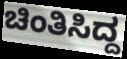
ಚಿಂತಿಸಿದ್ದ